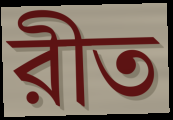
রীত